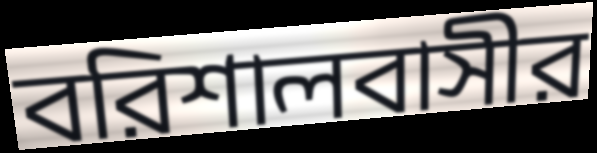
বরিশালবাসীর